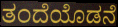
ತಂದೆಯೊಡನೆ